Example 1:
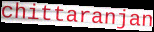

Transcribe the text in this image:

chittaranjan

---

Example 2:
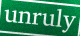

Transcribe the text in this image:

unruly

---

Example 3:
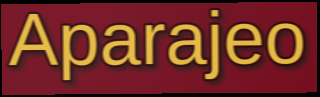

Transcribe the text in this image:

Aparajeo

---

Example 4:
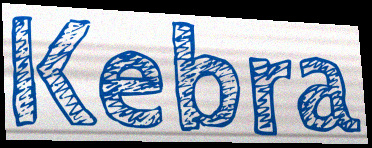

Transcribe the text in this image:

Kebra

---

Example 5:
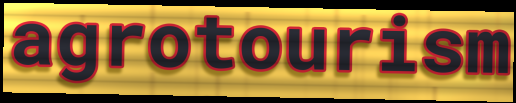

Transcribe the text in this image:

agrotourism